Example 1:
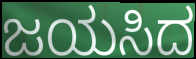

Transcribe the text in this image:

ಜಯಸಿದ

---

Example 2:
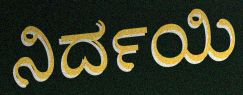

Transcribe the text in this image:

ನಿರ್ದಯಿ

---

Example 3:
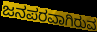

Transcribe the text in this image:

ಜನಪರವಾಗಿರುವ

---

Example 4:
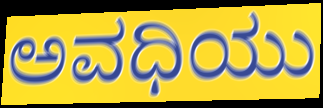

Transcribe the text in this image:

ಅವಧಿಯು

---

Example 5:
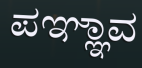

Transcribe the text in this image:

ಪಞ್ಞಾವ